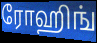
ரோஹிங்